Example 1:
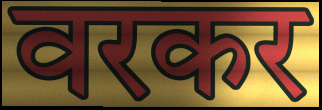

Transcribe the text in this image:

वरकर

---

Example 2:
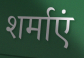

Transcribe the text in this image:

शर्माएं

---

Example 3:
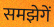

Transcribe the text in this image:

समझेगें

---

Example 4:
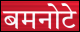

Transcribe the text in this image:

बमनोटे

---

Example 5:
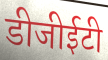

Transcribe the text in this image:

डीजीईटी